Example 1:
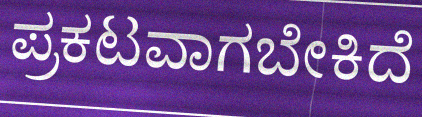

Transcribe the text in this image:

ಪ್ರಕಟವಾಗಬೇಕಿದೆ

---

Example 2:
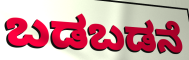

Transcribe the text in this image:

ಬಡಬಡನೆ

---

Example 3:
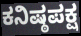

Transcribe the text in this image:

ಕನಿಷ್ಠಪಕ್ಷ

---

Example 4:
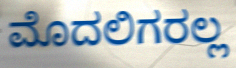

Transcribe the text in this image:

ಮೊದಲಿಗರಲ್ಲ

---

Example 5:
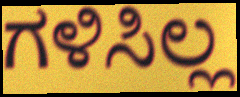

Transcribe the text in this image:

ಗಳಿಸಿಲ್ಲ